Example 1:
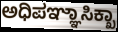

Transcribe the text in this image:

ಅಧಿಪಞ್ಞಾಸಿಕ್ಖಾ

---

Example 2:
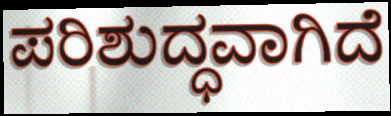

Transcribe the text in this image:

ಪರಿಶುದ್ಧವಾಗಿದೆ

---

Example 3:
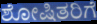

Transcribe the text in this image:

ಶೋಷಿತರಿಗೆ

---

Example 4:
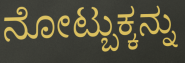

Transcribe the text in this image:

ನೋಟ್ಬುಕ್ಕನ್ನು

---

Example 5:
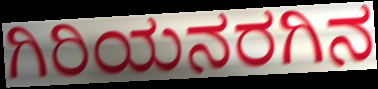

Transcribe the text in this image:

ಗಿರಿಯನರಗಿನ